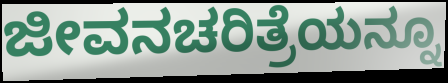
ಜೀವನಚರಿತ್ರೆಯನ್ನೂ